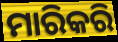
ମାରିକରି